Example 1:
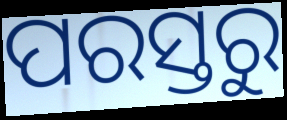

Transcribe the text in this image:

ପରସ୍ତରୁ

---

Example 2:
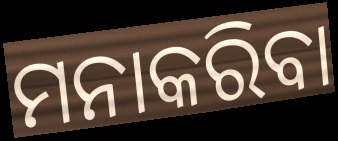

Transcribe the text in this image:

ମନାକରିବା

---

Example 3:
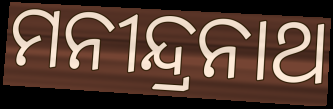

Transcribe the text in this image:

ମନୀନ୍ଦ୍ରନାଥ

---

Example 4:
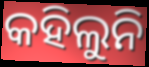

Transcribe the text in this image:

କହିଲୁନି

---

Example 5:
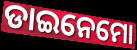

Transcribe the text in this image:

ଡାଇନେମୋ